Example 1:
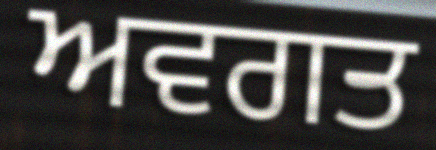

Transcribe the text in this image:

ਅਵਗਤ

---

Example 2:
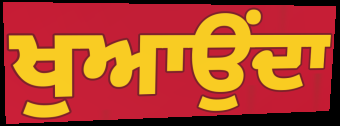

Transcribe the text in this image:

ਖੁਆਉਂਦਾ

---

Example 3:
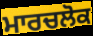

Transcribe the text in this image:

ਮਾਰਚਲੋਕ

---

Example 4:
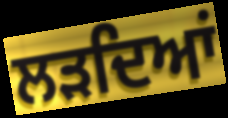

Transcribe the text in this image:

ਲੜਦਿਆਂ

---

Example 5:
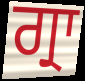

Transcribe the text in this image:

ਗ੍ਰਾ